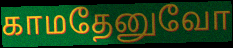
காமதேனுவோ